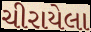
ચીરાયેલા